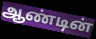
ஆண்டின்